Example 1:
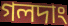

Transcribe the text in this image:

গলদাং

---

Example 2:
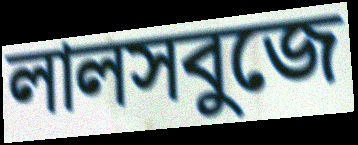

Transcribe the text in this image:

লালসবুজে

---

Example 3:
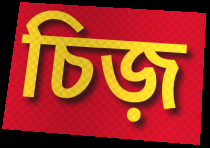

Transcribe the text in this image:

চিজ়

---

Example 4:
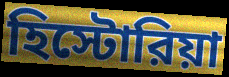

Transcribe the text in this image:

হিস্টোরিয়া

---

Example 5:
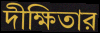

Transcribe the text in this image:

দীক্ষিতার